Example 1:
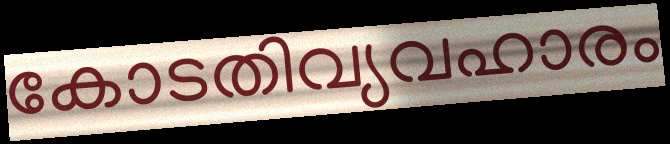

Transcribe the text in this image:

കോടതിവ്യവഹാരം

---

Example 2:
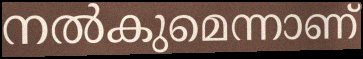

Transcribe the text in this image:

നൽകുമെന്നാണ്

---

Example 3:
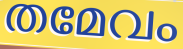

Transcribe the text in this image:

തമേവം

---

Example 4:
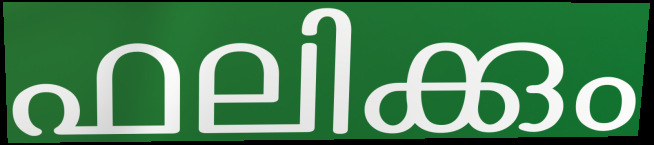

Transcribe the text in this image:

ഫലിക്കും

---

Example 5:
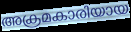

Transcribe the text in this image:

അക്രമകാരിയായ